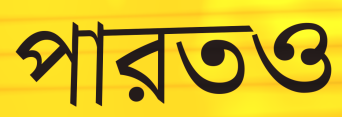
পারতও